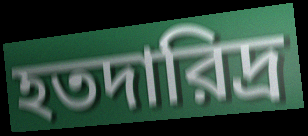
হতদারিদ্র